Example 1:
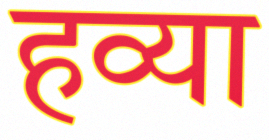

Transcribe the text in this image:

हव्या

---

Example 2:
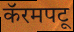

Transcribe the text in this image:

कॅरमपटू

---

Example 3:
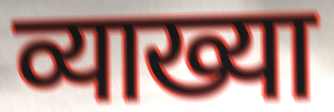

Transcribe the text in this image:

व्याख्या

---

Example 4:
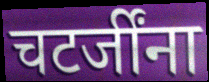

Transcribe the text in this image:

चटर्जींना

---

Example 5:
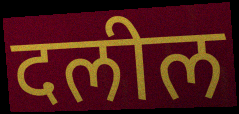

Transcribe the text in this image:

दलील